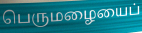
பெருமழையைப்